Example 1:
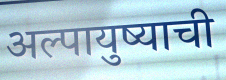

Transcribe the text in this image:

अल्पायुष्याची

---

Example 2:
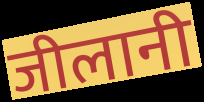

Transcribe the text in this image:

जीलानी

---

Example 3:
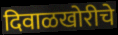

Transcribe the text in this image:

दिवाळखोरीचे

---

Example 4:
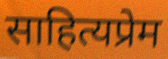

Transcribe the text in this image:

साहित्यप्रेम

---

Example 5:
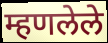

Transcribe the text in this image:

म्हणलेले